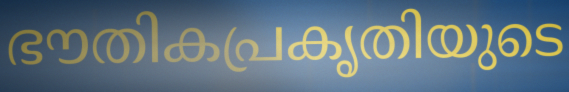
ഭൗതികപ്രകൃതിയുടെ